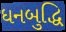
ધનબુદ્ધિ